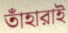
তাঁহারাই